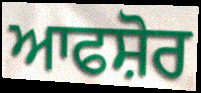
ਆਫਸ਼ੋਰ